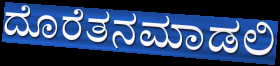
ದೊರೆತನಮಾಡಲಿ